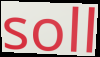
soll